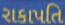
રાકાપતિ